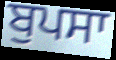
ਬੁਪਸਾ